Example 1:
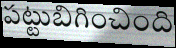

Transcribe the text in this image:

పట్టుబిగించింది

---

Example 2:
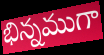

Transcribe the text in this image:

భిన్నముగా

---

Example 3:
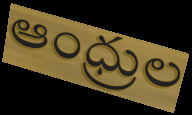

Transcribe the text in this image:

ఆంధ్రుల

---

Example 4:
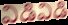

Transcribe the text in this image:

విడివిడి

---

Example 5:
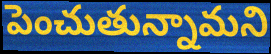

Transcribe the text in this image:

పెంచుతున్నామని